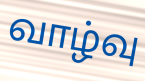
வாழ்வு